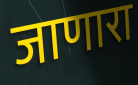
जाणारा